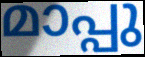
മാപ്പു